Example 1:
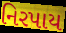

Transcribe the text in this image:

નિરપાય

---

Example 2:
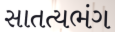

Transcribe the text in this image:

સાતત્યભંગ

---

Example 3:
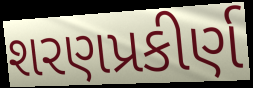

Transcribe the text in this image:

શરણપ્રકીર્ણ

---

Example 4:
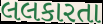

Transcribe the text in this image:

લલકારતા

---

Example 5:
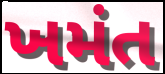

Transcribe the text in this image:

ખમંત